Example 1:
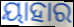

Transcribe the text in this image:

ୟାହାର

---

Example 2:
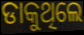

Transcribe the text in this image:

ଡାକୁଥିଲେ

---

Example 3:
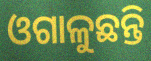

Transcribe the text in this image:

ଓଗାଳୁଛନ୍ତି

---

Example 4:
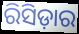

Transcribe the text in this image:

ରିସିଡ଼ାର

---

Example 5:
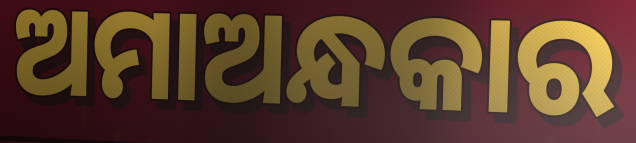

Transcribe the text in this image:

ଅମାଅନ୍ଧକାର